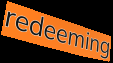
redeeming